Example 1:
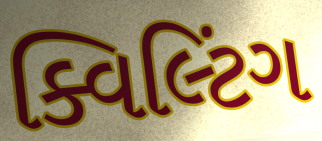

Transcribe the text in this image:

ક્વિલ્ટિંગ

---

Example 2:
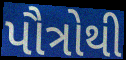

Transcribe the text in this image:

પૌત્રોથી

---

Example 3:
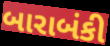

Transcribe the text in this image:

બારાબંકી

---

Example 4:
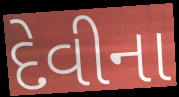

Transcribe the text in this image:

દેવીના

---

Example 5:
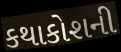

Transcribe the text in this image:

કથાકોશની